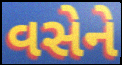
વસેને